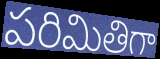
పరిమితిగా